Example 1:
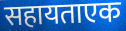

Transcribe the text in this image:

सहायताएक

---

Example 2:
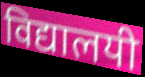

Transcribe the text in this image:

विद्यालयी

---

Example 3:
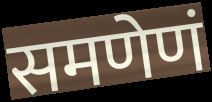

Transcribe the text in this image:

समणेणं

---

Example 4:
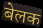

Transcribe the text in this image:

बेलक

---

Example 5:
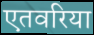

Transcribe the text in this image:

एतवरिया